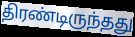
திரண்டிருந்தது